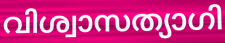
വിശ്വാസത്യാഗി